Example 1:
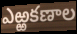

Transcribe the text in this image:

ఎఱ్ఱకణాల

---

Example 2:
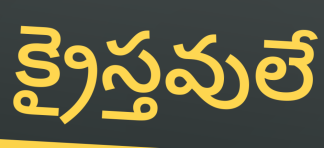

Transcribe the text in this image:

క్రైస్తవులే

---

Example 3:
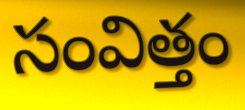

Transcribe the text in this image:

సంవిత్తం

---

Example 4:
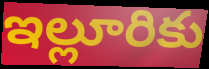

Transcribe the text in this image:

ఇల్లూరికు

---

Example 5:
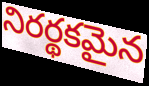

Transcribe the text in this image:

నిరర్థకమైన